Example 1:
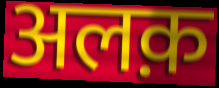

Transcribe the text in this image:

अलक़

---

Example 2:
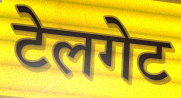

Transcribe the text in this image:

टेलगेट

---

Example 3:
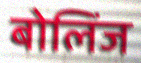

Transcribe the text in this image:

बोलिंज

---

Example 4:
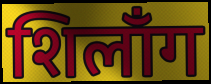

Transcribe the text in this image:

शिलाँग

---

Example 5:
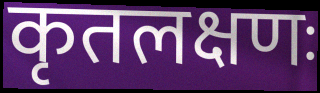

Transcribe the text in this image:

कृतलक्षणः